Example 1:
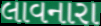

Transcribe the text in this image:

લાવનારા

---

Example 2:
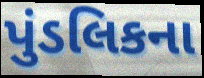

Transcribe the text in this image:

પુંડલિકના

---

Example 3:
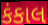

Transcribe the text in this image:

કંકાલ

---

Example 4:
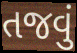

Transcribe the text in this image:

તજવું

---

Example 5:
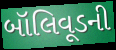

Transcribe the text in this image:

બૉલિવૂડની